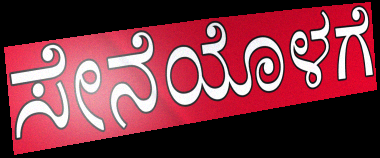
ಸೇನೆಯೊಳಗೆ